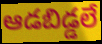
ఆడబిడ్డలే